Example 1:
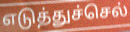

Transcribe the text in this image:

எடுத்துச்செல்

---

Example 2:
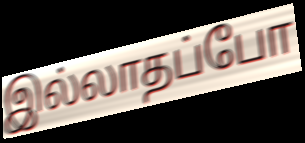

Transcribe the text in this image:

இல்லாதப்போ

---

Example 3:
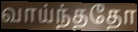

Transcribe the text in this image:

வாய்ந்ததோ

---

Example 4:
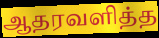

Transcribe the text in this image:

ஆதரவளித்த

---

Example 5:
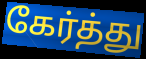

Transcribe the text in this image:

கேர்த்து